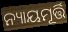
ନ୍ୟାୟମୂର୍ତ୍ତି